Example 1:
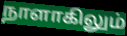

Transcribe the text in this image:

நாளாகிலும்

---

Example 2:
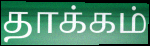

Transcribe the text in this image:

தாக்கம்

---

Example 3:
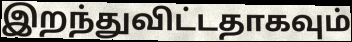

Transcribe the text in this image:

இறந்துவிட்டதாகவும்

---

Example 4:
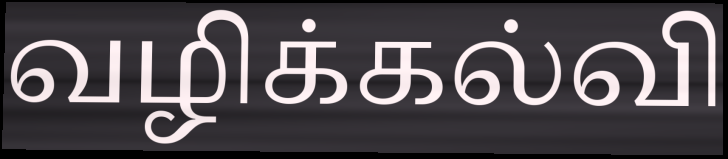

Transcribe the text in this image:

வழிக்கல்வி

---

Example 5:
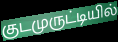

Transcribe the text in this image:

குடமுருட்டியில்